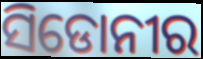
ସିଡୋନୀର